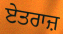
ਏਤਰਾਜ਼